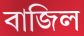
বাজিল